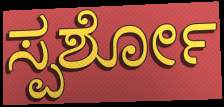
ಸ್ಪರ್ಶೋ